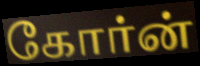
கோர்ன்